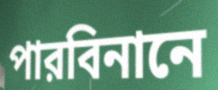
পারবিনানে